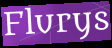
Flurys